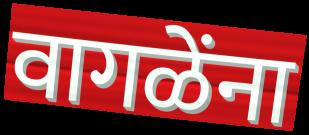
वागळेंना